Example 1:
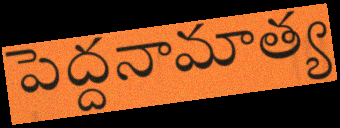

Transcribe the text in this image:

పెద్దనామాత్య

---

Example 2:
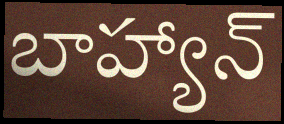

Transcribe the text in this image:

బాహ్యాన్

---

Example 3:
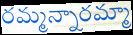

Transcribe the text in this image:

రమ్మన్నారమ్మా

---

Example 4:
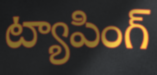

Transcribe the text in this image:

ట్యాపింగ్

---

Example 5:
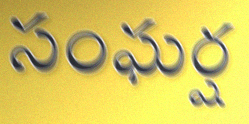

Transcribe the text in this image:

సంఘర్ష